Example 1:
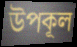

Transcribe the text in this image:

উপকূল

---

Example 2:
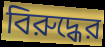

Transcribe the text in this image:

বিরুদ্ধের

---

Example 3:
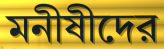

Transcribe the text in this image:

মনীষীদের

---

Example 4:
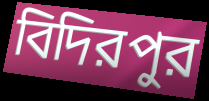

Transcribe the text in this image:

বিদিরপুর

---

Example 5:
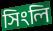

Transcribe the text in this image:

সিংলি